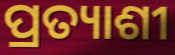
ପ୍ରତ୍ୟାଶୀ